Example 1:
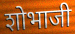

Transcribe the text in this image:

शोभाजी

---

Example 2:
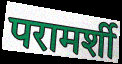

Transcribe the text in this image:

परामर्शी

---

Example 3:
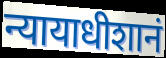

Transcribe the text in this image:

न्यायाधीशानं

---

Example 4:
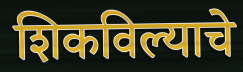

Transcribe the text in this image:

शिकविल्याचे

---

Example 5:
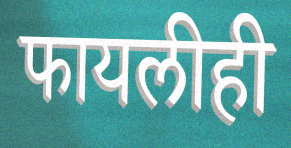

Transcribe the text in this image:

फायलीही